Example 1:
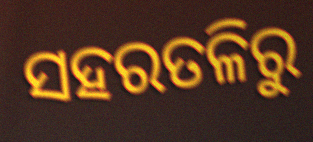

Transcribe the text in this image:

ସହରତଳିରୁ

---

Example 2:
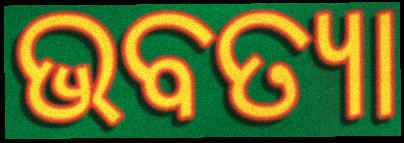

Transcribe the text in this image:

ଭବତ୍ୟା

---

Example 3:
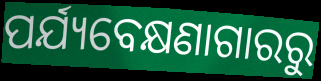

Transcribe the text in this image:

ପର୍ଯ୍ୟବେକ୍ଷଣାଗାରରୁ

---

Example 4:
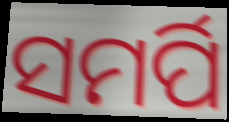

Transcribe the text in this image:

ସମର୍ପି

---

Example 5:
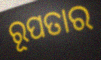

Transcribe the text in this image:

ରୂପତାର